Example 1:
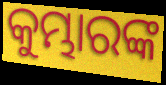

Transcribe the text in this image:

କୁମ୍ଭାରଙ୍କ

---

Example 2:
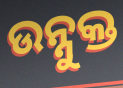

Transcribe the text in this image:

ଉନ୍ନୁକ୍ତ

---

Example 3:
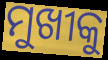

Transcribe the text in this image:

ମୁଖୀକୁ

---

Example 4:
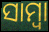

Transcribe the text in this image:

ସାମ୍ବା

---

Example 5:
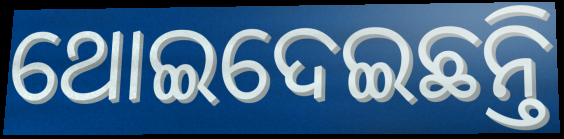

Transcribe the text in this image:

ଥୋଇଦେଇଛନ୍ତି